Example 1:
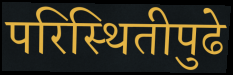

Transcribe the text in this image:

परिस्थितीपुढे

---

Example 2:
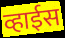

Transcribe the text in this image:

व्हाईस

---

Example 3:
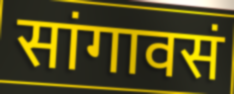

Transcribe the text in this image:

सांगावसं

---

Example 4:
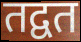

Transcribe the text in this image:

तद्वत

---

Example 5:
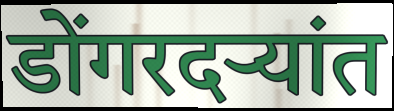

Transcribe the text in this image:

डोंगरदऱ्यांत